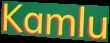
Kamlu